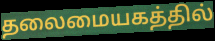
தலைமையகத்தில்